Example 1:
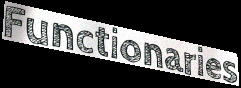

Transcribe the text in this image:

Functionaries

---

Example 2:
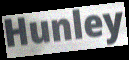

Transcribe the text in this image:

Hunley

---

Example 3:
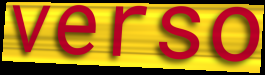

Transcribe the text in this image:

verso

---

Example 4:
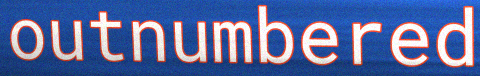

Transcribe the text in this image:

outnumbered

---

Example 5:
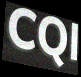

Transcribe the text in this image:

CQI